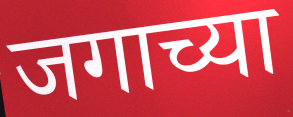
जगाच्या